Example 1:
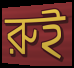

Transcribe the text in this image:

ৰুই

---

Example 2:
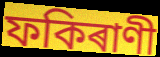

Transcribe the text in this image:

ফকিৰাণী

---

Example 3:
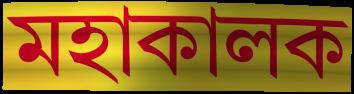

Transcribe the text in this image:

মহাকালক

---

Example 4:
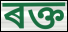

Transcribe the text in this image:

ৰক্ত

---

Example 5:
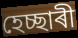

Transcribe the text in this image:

হেচ্ছাৰী